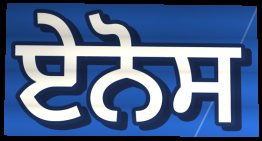
ਏਨੋਸ